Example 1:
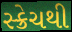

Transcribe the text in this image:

સ્ક્રેચથી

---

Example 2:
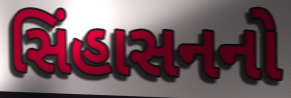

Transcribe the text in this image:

સિંહાસનનો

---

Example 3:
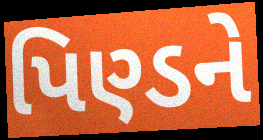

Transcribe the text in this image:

પિણ્ડને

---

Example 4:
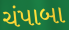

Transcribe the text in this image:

ચંપાબા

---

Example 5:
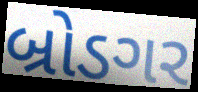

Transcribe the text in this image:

બ્રોડગર